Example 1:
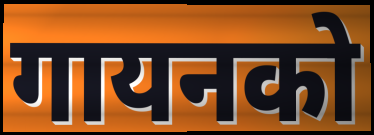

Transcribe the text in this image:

गायनको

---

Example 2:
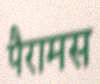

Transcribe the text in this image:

पैरामस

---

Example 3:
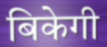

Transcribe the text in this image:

बिकेगी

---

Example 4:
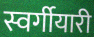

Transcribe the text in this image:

स्वर्गीयारी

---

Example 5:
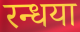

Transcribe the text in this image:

रन्धया